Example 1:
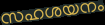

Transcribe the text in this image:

സഹശയനം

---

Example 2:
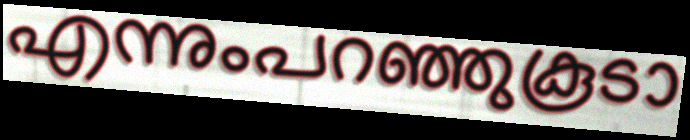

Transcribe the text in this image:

എന്നുംപറഞ്ഞുകൂടാ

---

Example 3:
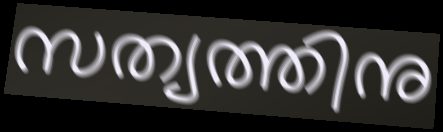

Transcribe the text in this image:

സത്യത്തിനു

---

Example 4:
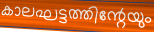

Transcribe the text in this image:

കാലഘട്ടത്തിന്റേയും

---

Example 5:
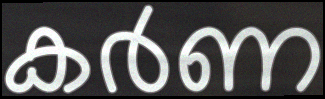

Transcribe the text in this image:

കർണ